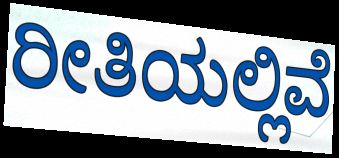
ರೀತಿಯಲ್ಲಿವೆ